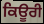
ਕਿਊਰੀ